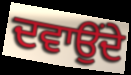
ਦਵਾਉਂਦੇ